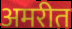
अमरीत